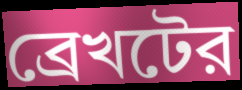
ব্রেখটের